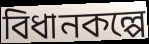
বিধানকল্পে